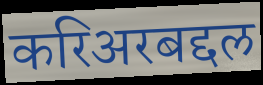
करिअरबद्दल